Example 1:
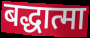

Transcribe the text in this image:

बद्धात्मा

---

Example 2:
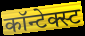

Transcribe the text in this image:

कॉन्टेक्स्ट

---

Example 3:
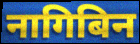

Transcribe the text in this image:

नागिबिन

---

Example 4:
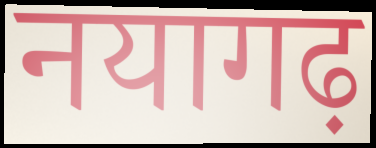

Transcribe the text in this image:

नयागढ़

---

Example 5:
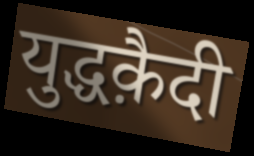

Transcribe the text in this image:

युद्धक़ैदी